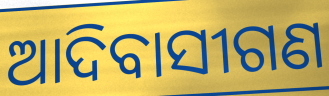
ଆଦିବାସୀଗଣ